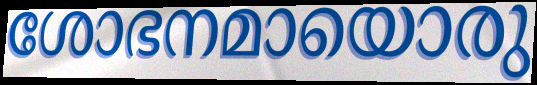
ശോഭനമായൊരു